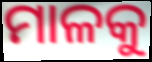
ମାଳକୁ